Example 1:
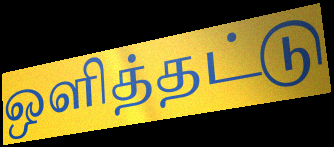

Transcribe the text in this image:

ஒளித்தட்டு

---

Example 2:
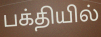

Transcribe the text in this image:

பக்தியில்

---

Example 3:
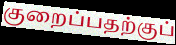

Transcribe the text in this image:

குறைப்பதற்குப்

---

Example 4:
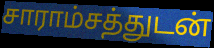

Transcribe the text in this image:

சாராம்சத்துடன்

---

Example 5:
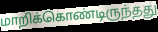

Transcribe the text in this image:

மாறிக்கொண்டிருந்தது